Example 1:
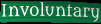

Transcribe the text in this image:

Involuntary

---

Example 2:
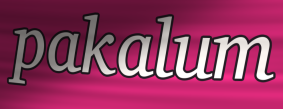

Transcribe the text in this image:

pakalum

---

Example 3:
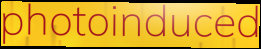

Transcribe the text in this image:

photoinduced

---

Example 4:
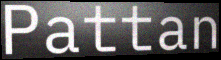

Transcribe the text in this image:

Pattan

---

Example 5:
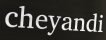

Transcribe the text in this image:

cheyandi